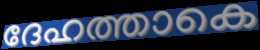
ദേഹത്താകെ